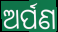
ଅର୍ପଣ